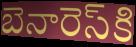
బెనారెస్‌కి